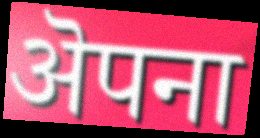
ऄपना